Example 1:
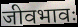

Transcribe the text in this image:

जीवभावः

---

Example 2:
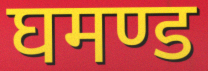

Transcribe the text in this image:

घमण्ड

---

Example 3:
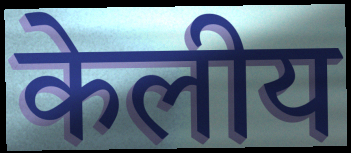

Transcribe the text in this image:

केलीय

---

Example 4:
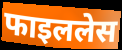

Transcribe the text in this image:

फाइललेस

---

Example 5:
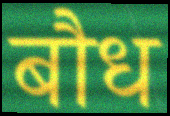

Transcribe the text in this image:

बौध